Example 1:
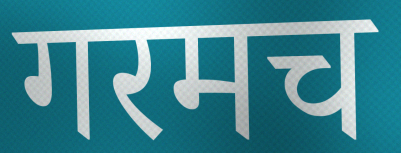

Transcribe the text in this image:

गरमच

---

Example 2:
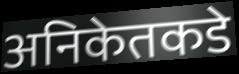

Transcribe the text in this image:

अनिकेतकडे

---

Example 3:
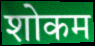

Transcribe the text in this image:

शोकम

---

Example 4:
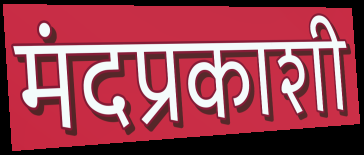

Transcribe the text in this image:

मंदप्रकाशी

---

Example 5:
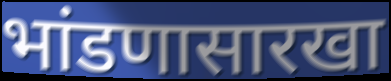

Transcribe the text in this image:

भांडणासारखा